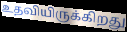
உதவியிருக்கிறது